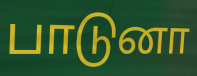
பாடுனா